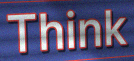
Think